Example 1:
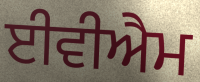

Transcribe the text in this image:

ਈਵੀਐਮ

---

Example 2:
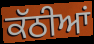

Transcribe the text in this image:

ਕੱਠੀਆਂ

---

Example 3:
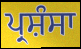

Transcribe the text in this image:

ਪ੍ਰਸ਼ੰਸਾ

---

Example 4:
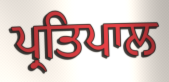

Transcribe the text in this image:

ਪ੍ਰਤਿਪਾਲ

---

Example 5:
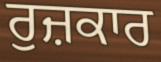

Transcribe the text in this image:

ਰੁਜ਼ਕਾਰ